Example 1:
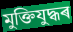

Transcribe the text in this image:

মুক্তিযুদ্ধৰ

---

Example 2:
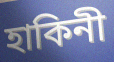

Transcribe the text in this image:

হাকিনী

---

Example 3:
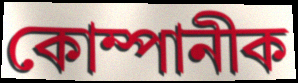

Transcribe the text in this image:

কোম্পানীক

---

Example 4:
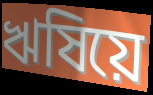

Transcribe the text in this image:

ঋষিয়ে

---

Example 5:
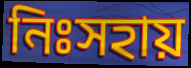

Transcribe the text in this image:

নিঃসহায়